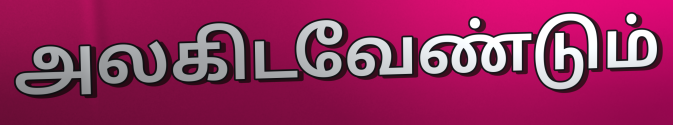
அலகிடவேண்டும்